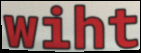
wiht